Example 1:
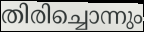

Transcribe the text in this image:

തിരിച്ചൊന്നും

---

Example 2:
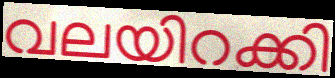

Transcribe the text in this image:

വലയിറക്കി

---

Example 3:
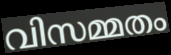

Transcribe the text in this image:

വിസമ്മതം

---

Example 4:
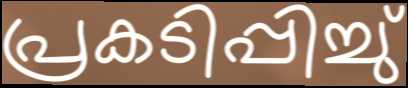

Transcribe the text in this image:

പ്രകടിപ്പിച്ചു്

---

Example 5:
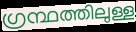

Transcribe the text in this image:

ഗ്രന്ഥത്തിലുള്ള